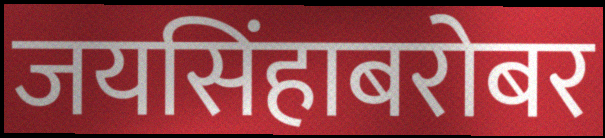
जयसिंहाबरोबर